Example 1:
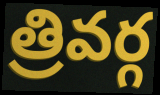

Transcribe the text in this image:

త్రివర్గ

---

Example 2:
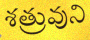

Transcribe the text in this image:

శత్రువుని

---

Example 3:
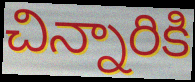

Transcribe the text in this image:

చిన్నారికి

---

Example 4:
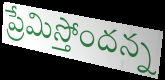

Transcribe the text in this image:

ప్రేమిస్తోందన్న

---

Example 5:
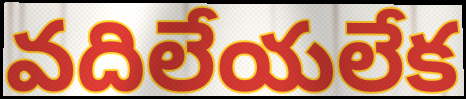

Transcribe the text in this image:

వదిలేయలేక